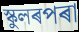
স্কুলৰপৰা